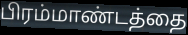
பிரம்மாண்டத்தை